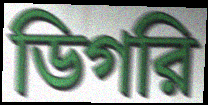
ডিগরি